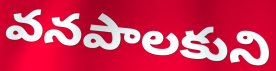
వనపాలకుని